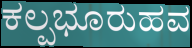
ಕಲ್ಪಭೂರುಹವ